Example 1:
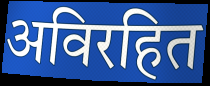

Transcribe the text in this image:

अविरहित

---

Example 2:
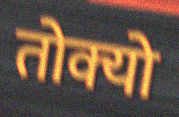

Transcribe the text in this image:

तोक्‍यो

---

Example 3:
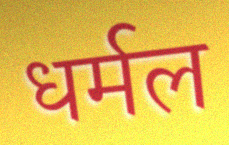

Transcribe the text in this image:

धर्मल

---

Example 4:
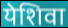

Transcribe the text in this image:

येशिवा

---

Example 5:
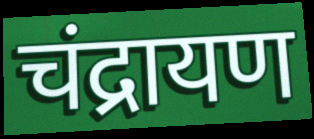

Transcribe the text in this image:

चंद्रायण